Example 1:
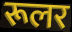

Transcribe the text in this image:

रूलर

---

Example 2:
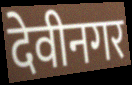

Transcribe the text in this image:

देवीनगर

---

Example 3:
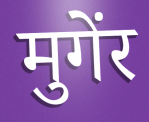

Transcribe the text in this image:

मुगेंर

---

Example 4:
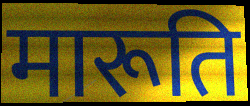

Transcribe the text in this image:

मारूति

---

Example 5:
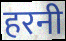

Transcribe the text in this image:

हरनी